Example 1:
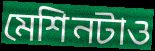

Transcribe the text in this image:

মেশিনটাও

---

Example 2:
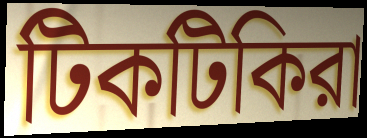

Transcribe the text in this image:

টিকটিকিরা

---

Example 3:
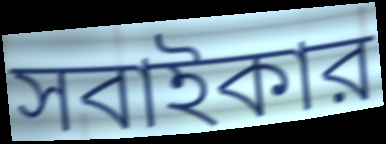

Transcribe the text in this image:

সবাইকার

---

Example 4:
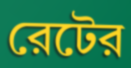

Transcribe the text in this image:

রেটের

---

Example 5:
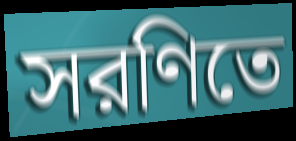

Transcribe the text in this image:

সরণিতে